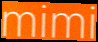
mimi